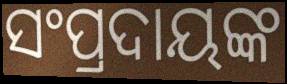
ସଂପ୍ରଦାୟଙ୍କ